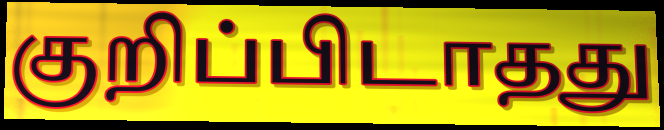
குறிப்பிடாதது